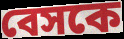
বেসকে